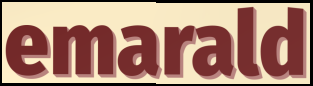
emarald